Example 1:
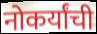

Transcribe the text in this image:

नोकर्यांची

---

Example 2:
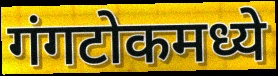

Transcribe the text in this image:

गंगटोकमध्ये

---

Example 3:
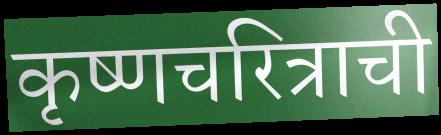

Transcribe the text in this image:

कृष्णचरित्राची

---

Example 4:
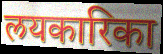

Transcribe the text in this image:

लयकारिका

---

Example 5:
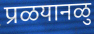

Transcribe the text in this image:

प्रळयानळु